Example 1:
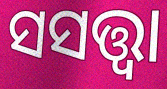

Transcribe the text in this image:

ସସତ୍ତ୍ୱା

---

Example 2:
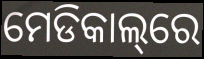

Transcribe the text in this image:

ମେଡିକାଲ୍‌ରେ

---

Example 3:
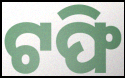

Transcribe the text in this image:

ଟଫି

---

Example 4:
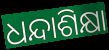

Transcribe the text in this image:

ଧନ୍ଦାଶିକ୍ଷା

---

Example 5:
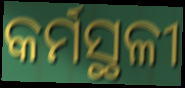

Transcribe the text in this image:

କର୍ମସ୍ଥଳୀ